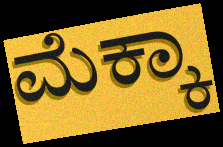
ಮೆಕ್ಕಾ